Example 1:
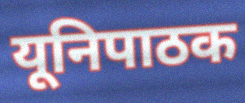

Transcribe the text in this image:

यूनिपाठक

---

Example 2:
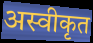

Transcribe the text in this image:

अस्‍वीकृत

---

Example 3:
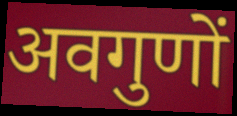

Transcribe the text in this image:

अवगुणों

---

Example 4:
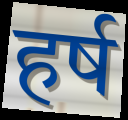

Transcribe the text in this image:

हर्ष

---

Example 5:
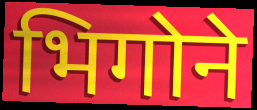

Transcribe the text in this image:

भिगोने